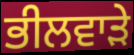
ਭੀਲਵਾੜੇ